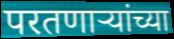
परतणाऱ्यांच्या